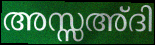
അസ്സഅ്ദി